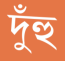
দুঁহু